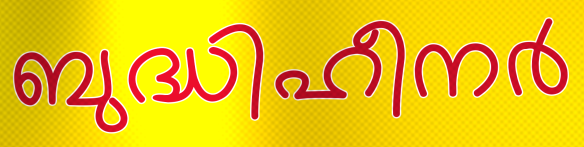
ബുദ്ധിഹീനർ